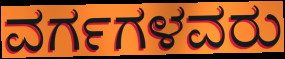
ವರ್ಗಗಳವರು